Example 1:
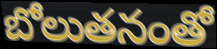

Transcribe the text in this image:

బోలుతనంతో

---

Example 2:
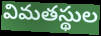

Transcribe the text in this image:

విమతస్థుల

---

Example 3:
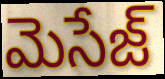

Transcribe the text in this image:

మెసేజ్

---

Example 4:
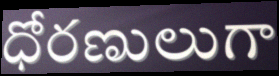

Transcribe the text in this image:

ధోరణులుగా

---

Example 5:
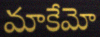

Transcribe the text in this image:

మాకేమో